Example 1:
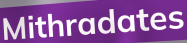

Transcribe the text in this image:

Mithradates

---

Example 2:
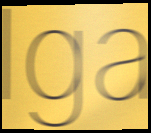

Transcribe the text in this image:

Iga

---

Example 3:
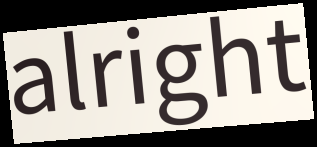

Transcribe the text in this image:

alright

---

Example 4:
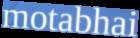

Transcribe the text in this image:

motabhai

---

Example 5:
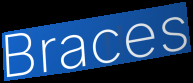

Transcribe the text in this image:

Braces